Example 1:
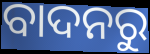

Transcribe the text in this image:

ବାଦନରୁ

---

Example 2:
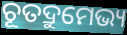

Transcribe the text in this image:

ଚୂତଦ୍ରୁମେଭ୍ୟ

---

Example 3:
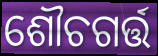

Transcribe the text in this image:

ଶୌଚଗର୍ତ୍ତ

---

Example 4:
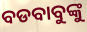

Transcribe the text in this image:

ବଡବାବୁଙ୍କୁ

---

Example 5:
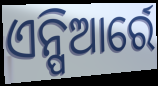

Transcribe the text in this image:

ଏନ୍ପିଆର୍ରେ